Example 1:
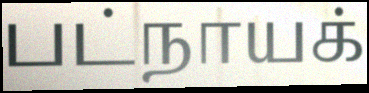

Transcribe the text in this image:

பட்நாயக்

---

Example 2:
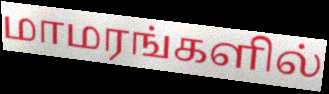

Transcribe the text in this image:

மாமரங்களில்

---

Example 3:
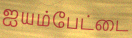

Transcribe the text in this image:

ஐயம்பேட்டை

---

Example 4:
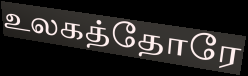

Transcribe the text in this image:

உலகத்தோரே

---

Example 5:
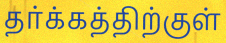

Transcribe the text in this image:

தர்க்கத்திற்குள்